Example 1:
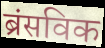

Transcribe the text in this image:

ब्रंसविक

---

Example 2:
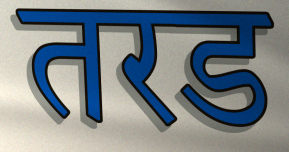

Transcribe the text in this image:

तरड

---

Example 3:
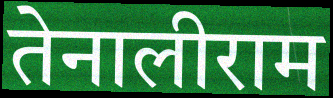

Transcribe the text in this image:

तेनालीराम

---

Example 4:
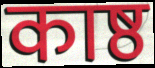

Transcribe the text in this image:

काष्ठ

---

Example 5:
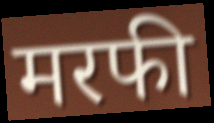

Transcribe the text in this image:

मरफी